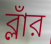
ব্লাঁর